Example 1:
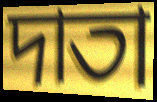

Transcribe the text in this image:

দাতা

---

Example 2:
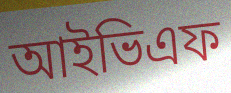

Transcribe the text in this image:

আইভিএফ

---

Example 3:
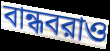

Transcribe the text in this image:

বান্ধবরাও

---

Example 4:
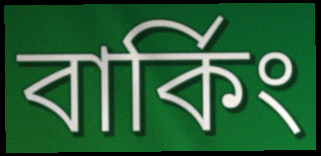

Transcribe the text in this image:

বার্কিং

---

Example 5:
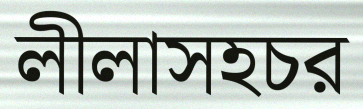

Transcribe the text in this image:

লীলাসহচর